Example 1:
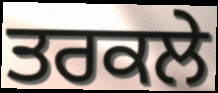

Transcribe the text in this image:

ਤਰਕਲੇ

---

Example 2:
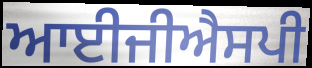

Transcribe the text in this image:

ਆਈਜੀਐਸਪੀ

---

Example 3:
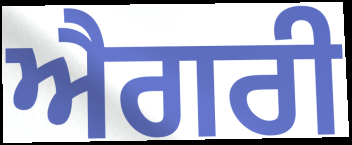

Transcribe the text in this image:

ਐਗਰੀ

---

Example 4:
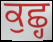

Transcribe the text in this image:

ਕੁਛ੍ਹ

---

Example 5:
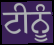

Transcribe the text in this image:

ਟੀਨੂੰ